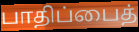
பாதிப்பைத்